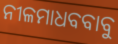
ନୀଳମାଧବବାବୁ